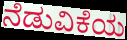
ನೆಡುವಿಕೆಯ